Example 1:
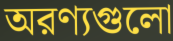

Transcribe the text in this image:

অরণ্যগুলো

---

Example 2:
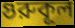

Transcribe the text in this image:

গুরুকূল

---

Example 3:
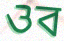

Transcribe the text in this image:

ওব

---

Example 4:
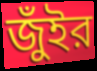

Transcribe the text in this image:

জুঁইর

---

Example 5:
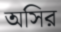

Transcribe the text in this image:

অসির